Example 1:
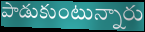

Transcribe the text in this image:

పాడుకుంటున్నారు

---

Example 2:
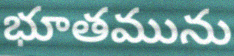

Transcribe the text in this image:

భూతమును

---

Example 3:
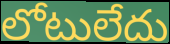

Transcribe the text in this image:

లోటులేదు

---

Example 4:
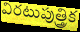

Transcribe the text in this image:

విరటుపుత్త్రిక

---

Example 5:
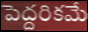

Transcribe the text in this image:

పెద్దరికమే